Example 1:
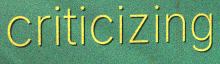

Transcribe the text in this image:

criticizing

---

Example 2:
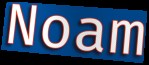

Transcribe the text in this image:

Noam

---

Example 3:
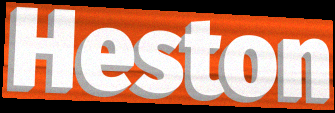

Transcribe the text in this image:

Heston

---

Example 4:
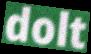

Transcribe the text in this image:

dolt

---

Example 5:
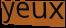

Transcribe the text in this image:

yeux